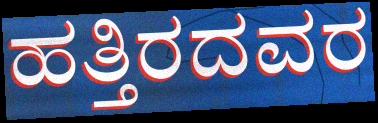
ಹತ್ತಿರದವರ